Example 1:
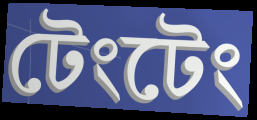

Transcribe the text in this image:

টেংটেং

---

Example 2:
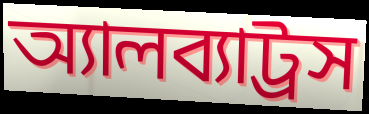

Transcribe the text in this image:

অ্যালব্যাট্রস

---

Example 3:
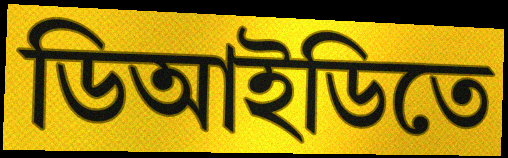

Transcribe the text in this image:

ডিআইডিতে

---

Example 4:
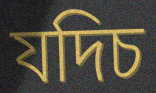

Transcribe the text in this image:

যদিচ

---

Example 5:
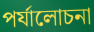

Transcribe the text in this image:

পর্যালোচনা